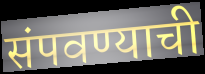
संपवण्याची